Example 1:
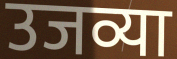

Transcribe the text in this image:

उजव्या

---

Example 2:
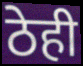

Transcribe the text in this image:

ठेही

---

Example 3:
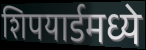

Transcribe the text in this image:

शिपयार्डमध्ये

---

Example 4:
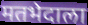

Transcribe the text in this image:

मतभेदाला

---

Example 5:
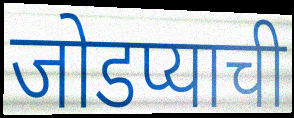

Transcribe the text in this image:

जोडप्याची